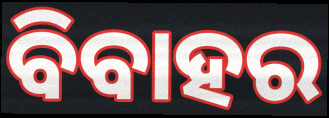
ବିବାହର